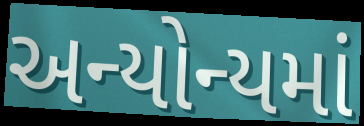
અન્યોન્યમાં